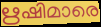
ഋഷിമാരെ